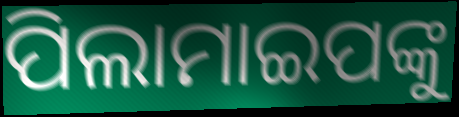
ପିଲାମାଇପଙ୍କୁ